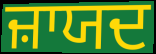
ਜ਼ਾਯਦ